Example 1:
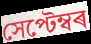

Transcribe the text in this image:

সেপ্টেম্বৰ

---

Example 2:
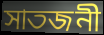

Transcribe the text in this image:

সাতজনী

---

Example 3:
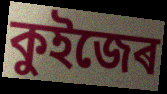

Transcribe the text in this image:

কুইজেৰ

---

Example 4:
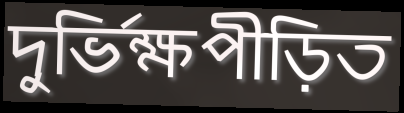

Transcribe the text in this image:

দুৰ্ভিক্ষপীড়িত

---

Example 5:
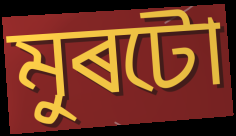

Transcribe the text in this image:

মুৰটো